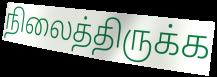
நிலைத்திருக்க